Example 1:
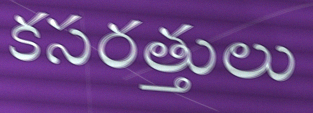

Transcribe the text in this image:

కసరత్తులు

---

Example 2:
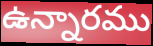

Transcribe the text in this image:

ఉన్నారము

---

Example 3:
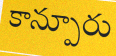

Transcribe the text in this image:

కాన్పూరు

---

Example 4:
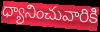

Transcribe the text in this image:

ధ్యానించువారికి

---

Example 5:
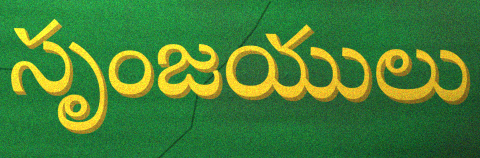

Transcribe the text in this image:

సృంజయులు